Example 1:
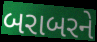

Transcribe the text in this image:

બરાબરને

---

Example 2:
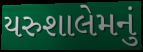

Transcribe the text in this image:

યરુશાલેમનું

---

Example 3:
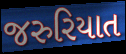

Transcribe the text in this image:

જરુરિયાત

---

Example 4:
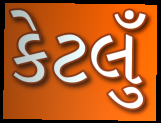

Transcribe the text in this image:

કેટલુઁ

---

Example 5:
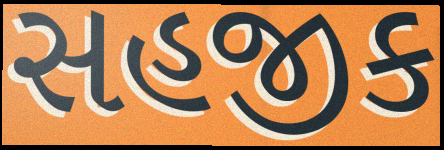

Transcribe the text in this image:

સહજીક